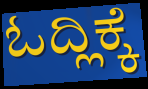
ಓದ್ಲಿಕ್ಕೆ